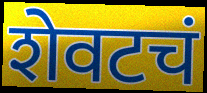
शेवटचं